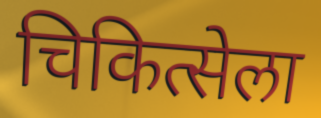
चिकित्सेला